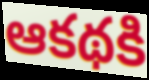
ఆకథకి